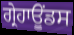
ਗ੍ਰੇਹਾਊਂਡਸ